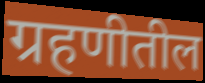
ग्रहणीतील